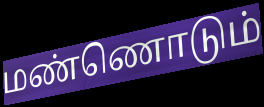
மண்ணொடும்